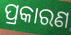
ପ୍ରକାରଣ